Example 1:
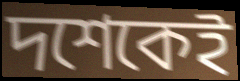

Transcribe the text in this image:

দশেকেই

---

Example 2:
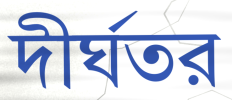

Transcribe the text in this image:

দীর্ঘতর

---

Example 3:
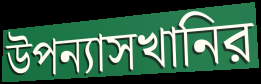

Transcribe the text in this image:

উপন্যাসখানির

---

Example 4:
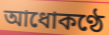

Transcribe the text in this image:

আধোকণ্ঠে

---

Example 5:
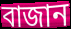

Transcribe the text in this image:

বাজান